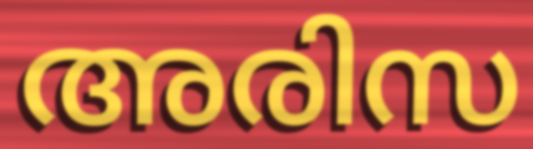
അരിസ